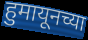
हुमायूनच्या